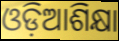
ଓଡ଼ିଆଶିକ୍ଷା